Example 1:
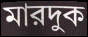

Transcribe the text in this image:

মারদুক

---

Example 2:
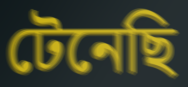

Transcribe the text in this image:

টেনেছি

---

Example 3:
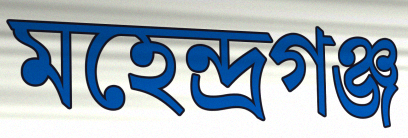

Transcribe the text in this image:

মহেন্দ্রগঞ্জ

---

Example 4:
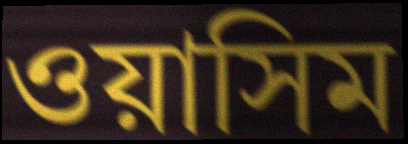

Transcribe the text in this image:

ওয়াসিম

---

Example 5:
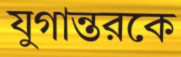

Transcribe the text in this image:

যুগান্তরকে